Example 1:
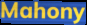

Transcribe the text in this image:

Mahony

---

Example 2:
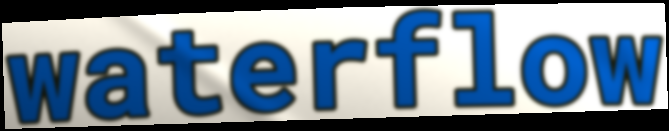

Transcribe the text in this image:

waterflow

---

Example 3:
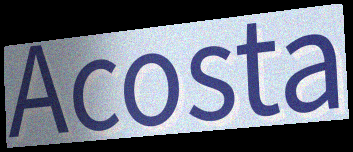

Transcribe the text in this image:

Acosta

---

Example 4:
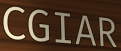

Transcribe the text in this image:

CGIAR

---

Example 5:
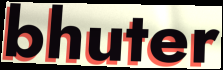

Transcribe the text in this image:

bhuter